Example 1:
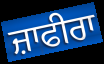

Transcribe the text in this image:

ਜ਼ਾਫੀਰਾ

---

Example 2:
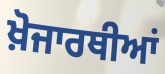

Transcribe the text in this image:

ਖ਼ੋਜਾਰਥੀਆਂ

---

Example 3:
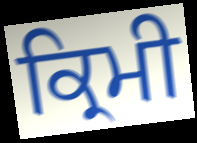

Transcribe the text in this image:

ਕ੍ਰਿਮੀ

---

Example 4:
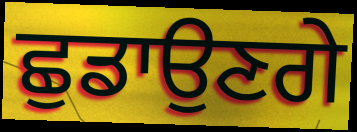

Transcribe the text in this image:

ਛੁਡਾਉਣਗੇ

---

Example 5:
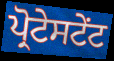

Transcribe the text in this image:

ਪ੍ਰੋਟੇਸਟੇਂਟ